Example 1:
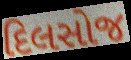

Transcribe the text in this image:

દિલસોજ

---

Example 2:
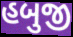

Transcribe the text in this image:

હબુજી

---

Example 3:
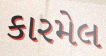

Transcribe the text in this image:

કારમેલ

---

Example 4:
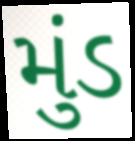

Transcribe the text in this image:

મુંડ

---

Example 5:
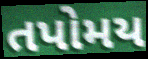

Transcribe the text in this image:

તપોમય